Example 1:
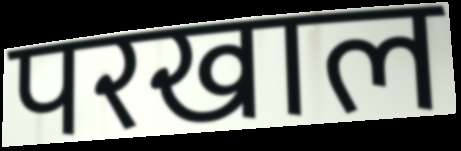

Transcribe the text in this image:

परखाल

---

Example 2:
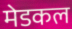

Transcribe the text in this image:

मेडकल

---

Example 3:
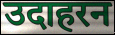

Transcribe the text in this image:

उदाहरन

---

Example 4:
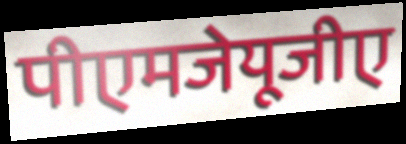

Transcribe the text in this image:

पीएमजेयूजीए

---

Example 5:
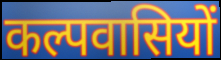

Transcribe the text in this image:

कल्पवासियों